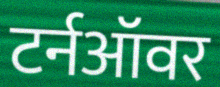
टर्नऑवर